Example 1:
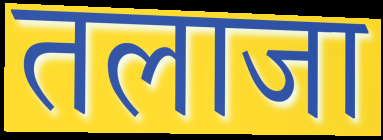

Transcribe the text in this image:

तलाजा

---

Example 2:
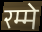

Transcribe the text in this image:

रम्मे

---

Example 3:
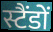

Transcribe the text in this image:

स्टैंडों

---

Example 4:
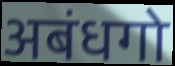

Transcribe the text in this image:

अबंधगो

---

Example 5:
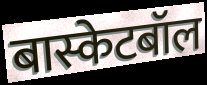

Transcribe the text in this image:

बास्‍केटबॉल